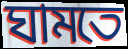
ঘামতে